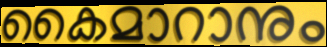
കൈമാറാനും